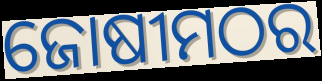
ଜୋଷୀମଠର